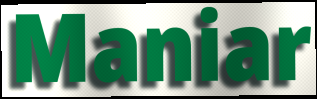
Maniar